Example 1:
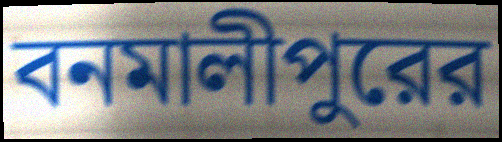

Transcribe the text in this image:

বনমালীপুরের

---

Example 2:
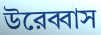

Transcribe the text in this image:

উরেব্বাস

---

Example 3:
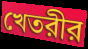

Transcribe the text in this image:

খেতরীর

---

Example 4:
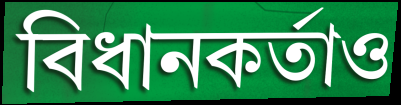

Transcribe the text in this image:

বিধানকর্তাও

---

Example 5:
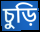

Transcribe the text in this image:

চুড়ি